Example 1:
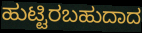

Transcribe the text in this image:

ಹುಟ್ಟಿರಬಹುದಾದ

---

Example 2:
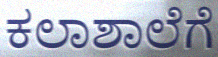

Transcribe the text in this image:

ಕಲಾಶಾಲೆಗೆ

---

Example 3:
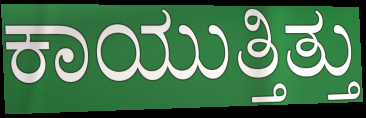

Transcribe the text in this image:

ಕಾಯುತ್ತಿತ್ತು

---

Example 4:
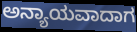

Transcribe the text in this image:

ಅನ್ಯಾಯವಾದಾಗ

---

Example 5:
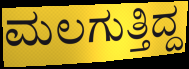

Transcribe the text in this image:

ಮಲಗುತ್ತಿದ್ದ